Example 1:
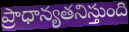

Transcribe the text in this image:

ప్రాధాన్యతనిస్తుంది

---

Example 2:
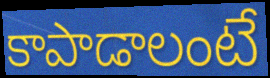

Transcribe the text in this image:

కాపాడాలంటే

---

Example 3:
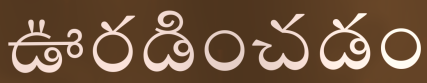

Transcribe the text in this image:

ఊరడించడం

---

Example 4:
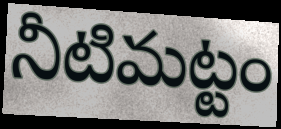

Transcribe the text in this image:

నీటిమట్టం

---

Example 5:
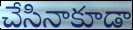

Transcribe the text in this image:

చేసినాకూడా